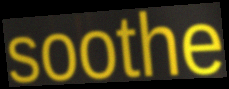
soothe